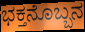
ಭಕ್ತನೊಬ್ಬನ